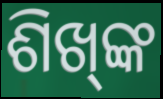
ଶିଖ୍‍ଙ୍କ